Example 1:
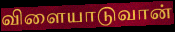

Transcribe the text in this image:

விளையாடுவான்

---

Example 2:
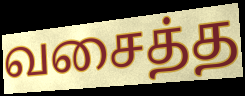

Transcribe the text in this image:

வசைத்த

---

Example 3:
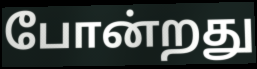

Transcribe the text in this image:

போன்றது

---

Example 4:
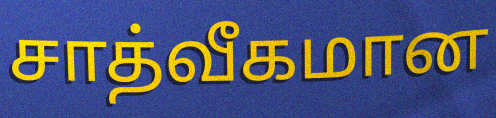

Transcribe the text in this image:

சாத்வீகமான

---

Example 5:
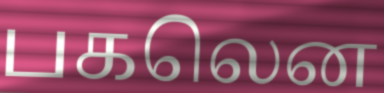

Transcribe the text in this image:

பகலென